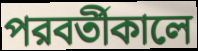
পরবর্তীকালে